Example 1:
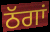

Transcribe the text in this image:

ਠੱਗਾਂ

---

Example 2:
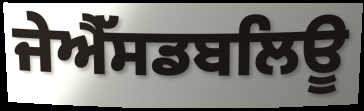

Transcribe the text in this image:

ਜੇਐੱਸਡਬਲਿਊ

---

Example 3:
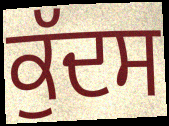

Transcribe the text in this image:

ਕੁੱਦਸ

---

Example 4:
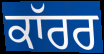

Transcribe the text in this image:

ਕਾੱਰਰ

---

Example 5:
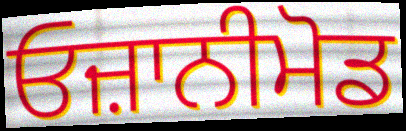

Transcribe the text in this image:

ਓਜ਼ਾਨੀਮੋਡ